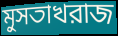
মুসতাখরাজ